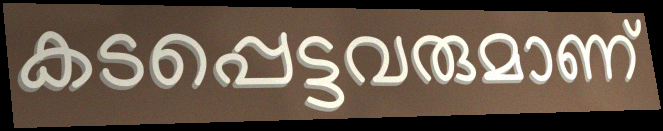
കടപ്പെട്ടവരുമാണ്